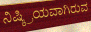
ನಿಷ್ಕ್ರಿಯವಾಗಿರುವ